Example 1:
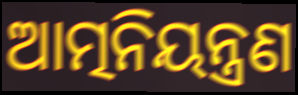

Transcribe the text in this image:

ଆତ୍ମନିୟନ୍ତ୍ରଣ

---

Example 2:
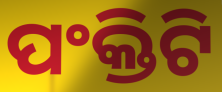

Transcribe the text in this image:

ପଂକ୍ତିଟି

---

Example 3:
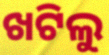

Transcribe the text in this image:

ଖଟିଲୁ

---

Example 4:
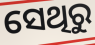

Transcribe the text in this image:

ସେଥିରୁ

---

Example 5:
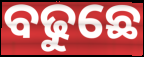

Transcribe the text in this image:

ବଢୁଛେ